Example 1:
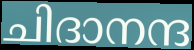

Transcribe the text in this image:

ചിദാനന്ദ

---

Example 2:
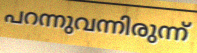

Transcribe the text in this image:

പറന്നുവന്നിരുന്ന്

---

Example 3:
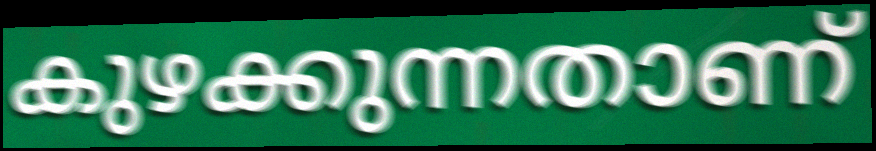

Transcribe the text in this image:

കുഴക്കുന്നതാണ്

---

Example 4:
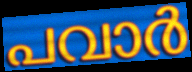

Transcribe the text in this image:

പവാർ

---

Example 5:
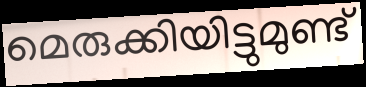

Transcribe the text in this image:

മെരുക്കിയിട്ടുമുണ്ട്